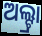
ଅଲ୍ଟ୍ରା